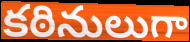
కఠినులుగా